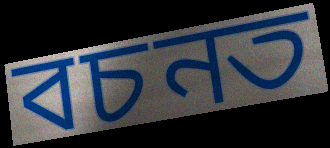
বচনত